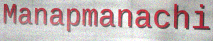
Manapmanachi